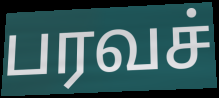
பரவச்